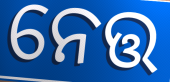
ନେତ୍ତ